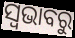
ସ୍ୱଭାବରୁ